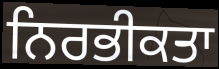
ਨਿਰਭੀਕਤਾ